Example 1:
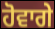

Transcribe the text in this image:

ਹੋਵਾਗੇ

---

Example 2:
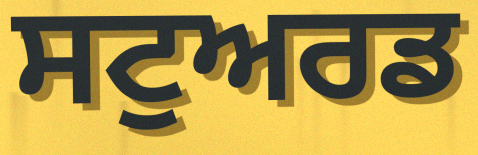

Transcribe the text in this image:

ਸਟੁਅਰਡ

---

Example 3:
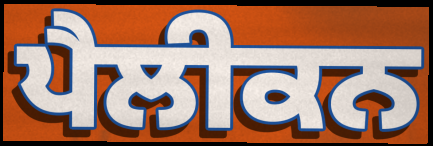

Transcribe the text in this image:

ਪੈਲੀਕਨ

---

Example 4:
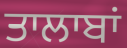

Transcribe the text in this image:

ਤਾਲਾਬਾਂ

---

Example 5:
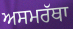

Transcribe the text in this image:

ਅਸਮਰੱਥਾ